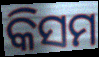
କିସମ